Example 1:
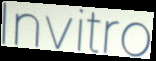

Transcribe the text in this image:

Invitro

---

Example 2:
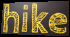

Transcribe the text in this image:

hike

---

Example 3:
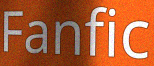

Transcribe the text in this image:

Fanfic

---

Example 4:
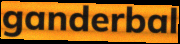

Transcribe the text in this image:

ganderbal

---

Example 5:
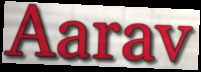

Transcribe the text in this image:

Aarav